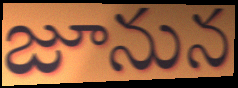
జూనున